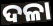
ଦଳା